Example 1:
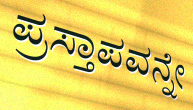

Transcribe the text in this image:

ಪ್ರಸ್ತಾಪವನ್ನೇ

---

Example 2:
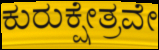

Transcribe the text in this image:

ಕುರುಕ್ಷೇತ್ರವೇ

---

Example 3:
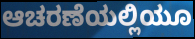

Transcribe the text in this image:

ಆಚರಣೆಯಲ್ಲಿಯೂ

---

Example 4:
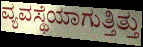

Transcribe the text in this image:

ವ್ಯವಸ್ಥೆಯಾಗುತ್ತಿತ್ತು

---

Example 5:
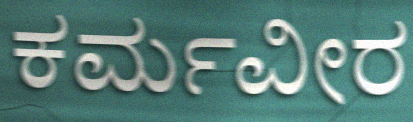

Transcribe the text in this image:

ಕರ್ಮವೀರ